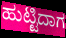
ಹುಟ್ಟಿದಾಗ